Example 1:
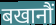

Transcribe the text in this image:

बखानौं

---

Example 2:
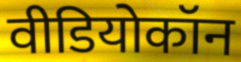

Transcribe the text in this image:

वीडियोकॉन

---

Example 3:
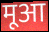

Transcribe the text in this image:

मूआ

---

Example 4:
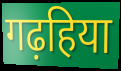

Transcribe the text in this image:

गढ़हिया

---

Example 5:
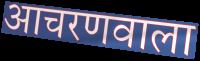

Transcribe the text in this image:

आचरणवाला